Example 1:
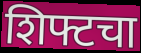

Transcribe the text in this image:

शिफ्टचा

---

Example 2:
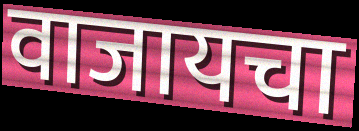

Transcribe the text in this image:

वाजायचा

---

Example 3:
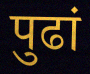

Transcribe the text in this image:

पुढां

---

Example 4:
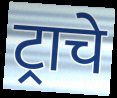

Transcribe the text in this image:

ट्राचे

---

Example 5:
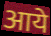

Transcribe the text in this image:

आये